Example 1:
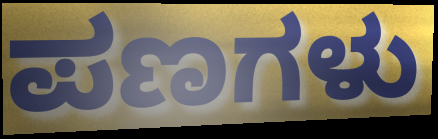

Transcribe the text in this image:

ಪಣಗಳು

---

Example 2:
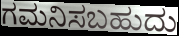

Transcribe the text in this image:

ಗಮನಿಸಬಹುದು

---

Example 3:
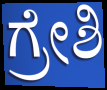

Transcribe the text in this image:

ಗ್ರೇಶಿ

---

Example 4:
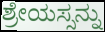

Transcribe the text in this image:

ಶ್ರೇಯಸ್ಸನ್ನು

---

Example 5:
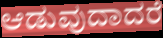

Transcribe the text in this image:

ಆಡುವುದಾದರೆ